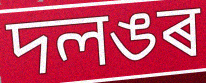
দলঙৰ